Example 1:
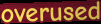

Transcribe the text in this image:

overused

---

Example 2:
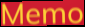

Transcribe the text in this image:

Memo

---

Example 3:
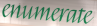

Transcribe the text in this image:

enumerate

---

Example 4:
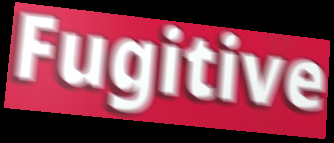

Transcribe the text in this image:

Fugitive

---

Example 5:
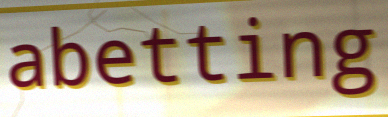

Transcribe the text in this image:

abetting